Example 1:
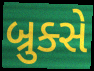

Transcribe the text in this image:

બ્રુક્સે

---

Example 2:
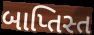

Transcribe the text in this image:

બાપ્તિસ્ત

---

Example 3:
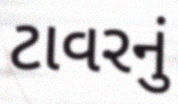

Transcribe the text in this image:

ટાવરનું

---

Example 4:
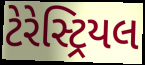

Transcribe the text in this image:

ટેરેસ્ટ્રિયલ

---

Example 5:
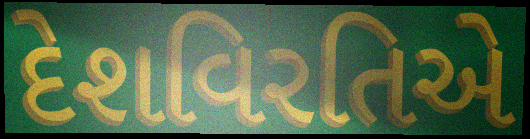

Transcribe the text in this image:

દેશવિરતિએ